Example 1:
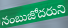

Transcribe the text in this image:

నంబుజోదరుని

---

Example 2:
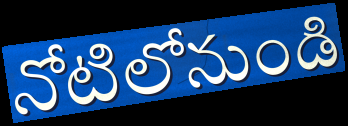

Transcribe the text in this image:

నోటిలోనుండి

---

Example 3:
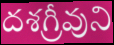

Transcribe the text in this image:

దశగ్రీవుని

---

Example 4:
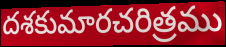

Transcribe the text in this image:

దశకుమారచరిత్రము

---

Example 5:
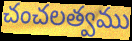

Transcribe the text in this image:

చంచలత్వము